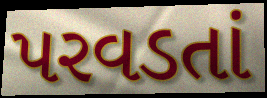
પરવડતાં